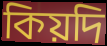
কিয়দি